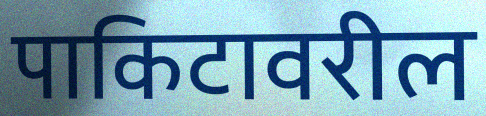
पाकिटावरील